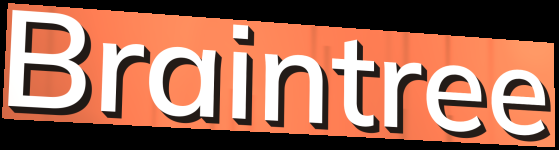
Braintree